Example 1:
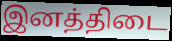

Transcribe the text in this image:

இனத்திடை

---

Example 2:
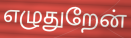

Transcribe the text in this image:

எழுதுறேன்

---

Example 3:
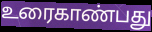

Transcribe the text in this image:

உரைகாண்பது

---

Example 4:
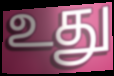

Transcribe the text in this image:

உது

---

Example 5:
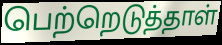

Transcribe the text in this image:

பெற்றெடுத்தாள்